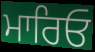
ਮਾਰਿਓ